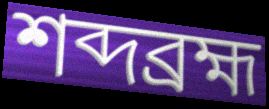
শব্দব্রহ্ম